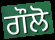
ਗੌਲੋ